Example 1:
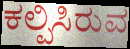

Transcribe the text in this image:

ಕಲ್ಪಿಸಿರುವ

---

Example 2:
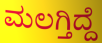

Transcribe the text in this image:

ಮಲಗ್ತಿದ್ದೆ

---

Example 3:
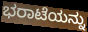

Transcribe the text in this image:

ಭರಾಟೆಯನ್ನು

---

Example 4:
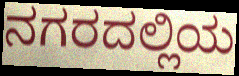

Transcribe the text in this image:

ನಗರದಲ್ಲಿಯ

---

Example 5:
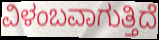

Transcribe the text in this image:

ವಿಳಂಬವಾಗುತ್ತಿದೆ